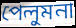
পেলুমনা